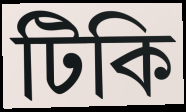
টিকি